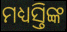
ମଧ୍ୟସ୍ତିଙ୍କ